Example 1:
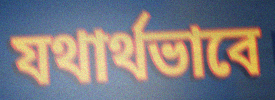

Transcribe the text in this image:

যথার্থভাবে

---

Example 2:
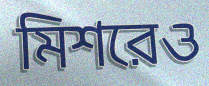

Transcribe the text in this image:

মিশরেও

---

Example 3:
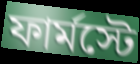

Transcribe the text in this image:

ফার্মস্টে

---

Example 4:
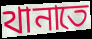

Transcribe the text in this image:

থানাতে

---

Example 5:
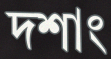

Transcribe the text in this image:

দশাং